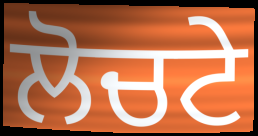
ਲੋਚਟੇ